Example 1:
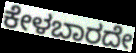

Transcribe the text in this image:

ಕೇಳಬಾರದೇ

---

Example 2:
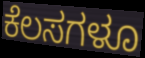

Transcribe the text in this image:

ಕೆಲಸಗಳೂ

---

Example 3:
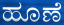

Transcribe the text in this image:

ಹೂಣೆ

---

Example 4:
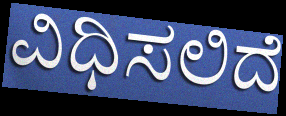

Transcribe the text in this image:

ವಿಧಿಸಲಿದೆ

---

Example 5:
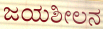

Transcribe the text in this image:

ಜಯಶೀಲನ